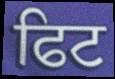
ਫਿਟ